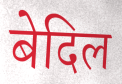
बेदिल